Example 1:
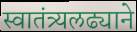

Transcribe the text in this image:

स्वातंत्र्यलढ्याने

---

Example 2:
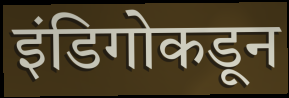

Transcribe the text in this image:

इंडिगोकडून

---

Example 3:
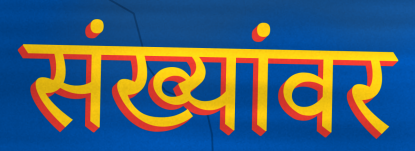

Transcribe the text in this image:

संख्यांवर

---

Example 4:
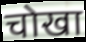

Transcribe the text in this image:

चोखा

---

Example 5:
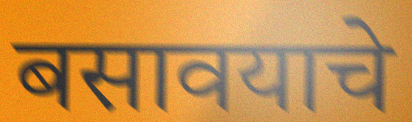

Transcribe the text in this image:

बसावयाचे